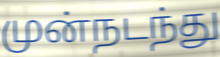
முன்நடந்து